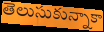
తెలుసుకున్నాకా